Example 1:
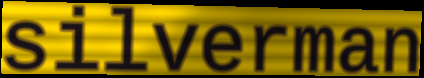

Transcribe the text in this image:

silverman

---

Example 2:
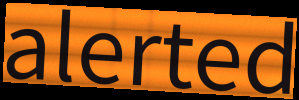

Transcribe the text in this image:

alerted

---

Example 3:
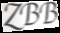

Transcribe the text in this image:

ZBB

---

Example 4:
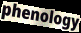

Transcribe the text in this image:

phenology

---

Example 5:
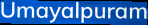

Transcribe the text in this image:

Umayalpuram